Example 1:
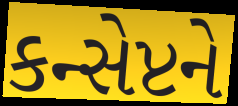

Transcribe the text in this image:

કન્સેપ્ટને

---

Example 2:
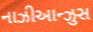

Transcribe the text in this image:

નાઝીઆન્ઝુસ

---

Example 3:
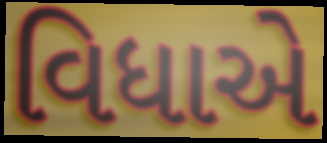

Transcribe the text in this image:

વિધાએ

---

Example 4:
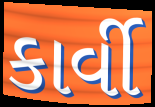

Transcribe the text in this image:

કાર્વી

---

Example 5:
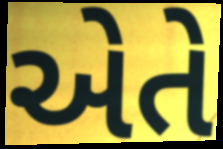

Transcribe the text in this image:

એતે